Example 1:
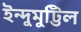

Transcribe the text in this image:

ইন্দুমুট্টিল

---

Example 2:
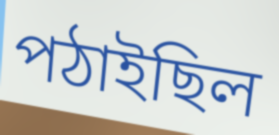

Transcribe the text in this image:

পঠাইছিল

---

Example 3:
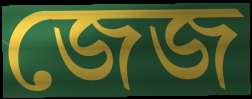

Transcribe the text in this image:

জেজ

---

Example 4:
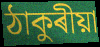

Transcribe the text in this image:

ঠাকুৰীয়া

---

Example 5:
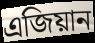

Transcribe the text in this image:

এজিয়ান